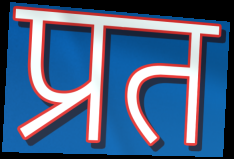
प्रत